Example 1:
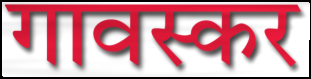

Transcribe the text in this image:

गावस्‍कर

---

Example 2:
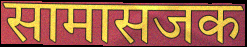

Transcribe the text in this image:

सामासजक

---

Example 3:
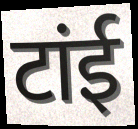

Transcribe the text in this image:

टांई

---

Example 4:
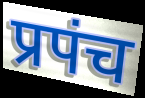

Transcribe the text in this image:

प्रपंच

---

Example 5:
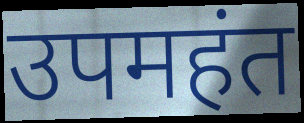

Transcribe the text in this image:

उपमहंत